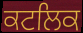
ਕਟਲਿਕ